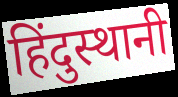
हिंदुस्थानी